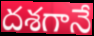
దశగానే